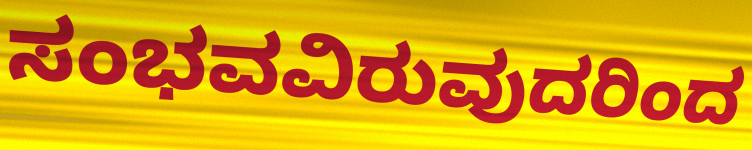
ಸಂಭವವಿರುವುದರಿಂದ